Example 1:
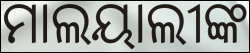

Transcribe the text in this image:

ମାଲୟାଲୀଙ୍କ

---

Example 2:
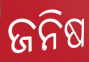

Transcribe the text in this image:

ଜନିଷ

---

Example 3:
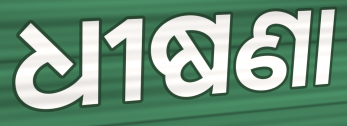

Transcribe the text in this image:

ଧୀଷଣା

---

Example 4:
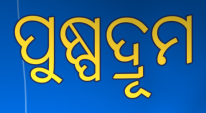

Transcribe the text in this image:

ପୁଷ୍ପଦ୍ରୂମ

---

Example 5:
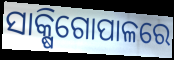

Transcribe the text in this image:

ସାକ୍ଷିଗୋପାଳରେ